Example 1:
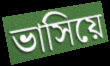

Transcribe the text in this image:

ভাসিয়ে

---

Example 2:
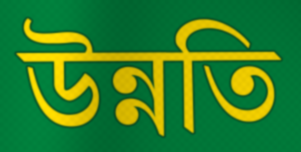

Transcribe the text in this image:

উন্নতি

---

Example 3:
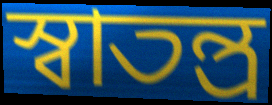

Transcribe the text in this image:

স্বাতন্ত্র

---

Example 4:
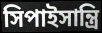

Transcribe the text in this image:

সিপাইসান্ত্রি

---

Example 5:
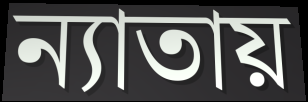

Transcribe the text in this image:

ন্যাতায়